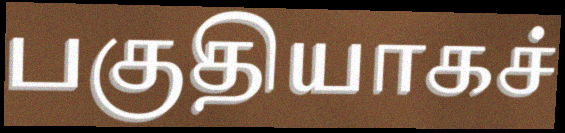
பகுதியாகச்